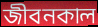
জীবনকাল